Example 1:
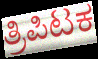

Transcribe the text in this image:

ತ್ರಿಪಿಟಕ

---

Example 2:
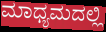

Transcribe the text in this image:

ಮಾಧ್ಯಮದಲ್ಲಿ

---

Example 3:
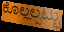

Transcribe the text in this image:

ಕೊಲ್ಲಲ್ಪಟ್ಟು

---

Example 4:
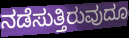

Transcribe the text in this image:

ನಡೆಸುತ್ತಿರುವುದೂ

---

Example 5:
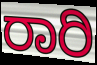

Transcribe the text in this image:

ರಾರಿ